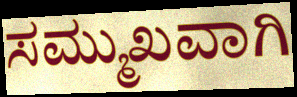
ಸಮ್ಮುಖವಾಗಿ